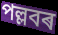
পল্লবৰ